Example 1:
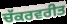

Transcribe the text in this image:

ਚੱਕਰਵਰੀਤ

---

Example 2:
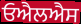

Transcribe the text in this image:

ਓਐਲਐਸ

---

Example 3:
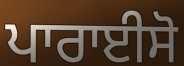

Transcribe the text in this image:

ਪਾਰਾਈਸੋ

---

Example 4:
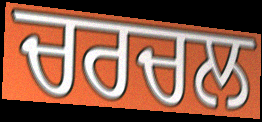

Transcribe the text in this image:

ਚਰਚਲ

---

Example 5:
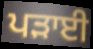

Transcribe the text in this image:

ਪੜਾਈ